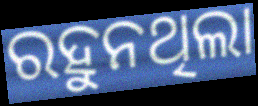
ରହୁନଥିଲା